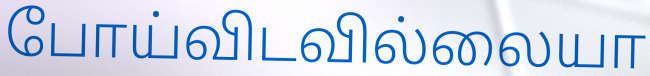
போய்விடவில்லையா